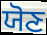
ਯੋਣ